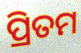
ପ୍ରିତମ